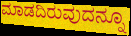
ಮಾಡದಿರುವುದನ್ನೂ